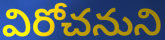
విరోచనుని